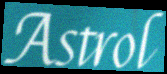
Astrol